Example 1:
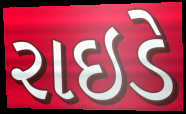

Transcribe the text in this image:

રાઇડે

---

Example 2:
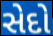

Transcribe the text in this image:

સેદો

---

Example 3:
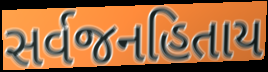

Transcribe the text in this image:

સર્વજનહિતાય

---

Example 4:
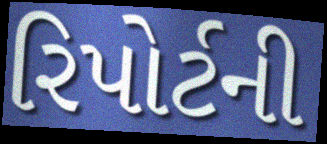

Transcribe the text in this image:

રિપોર્ટની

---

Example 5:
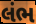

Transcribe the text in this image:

લંભ